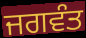
ਜਗਵੰਤ